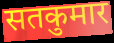
सतकुमार